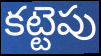
కట్టెపు